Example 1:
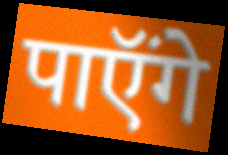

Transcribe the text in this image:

पाऍंगे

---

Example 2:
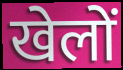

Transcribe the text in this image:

खेलों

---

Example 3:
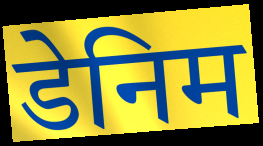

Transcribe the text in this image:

डेनिम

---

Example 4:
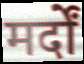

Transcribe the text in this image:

मर्दों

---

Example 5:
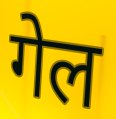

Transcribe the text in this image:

गेल